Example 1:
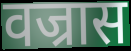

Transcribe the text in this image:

वज्रास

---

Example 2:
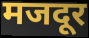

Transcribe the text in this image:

मजदूर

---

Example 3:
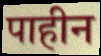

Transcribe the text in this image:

पाहीन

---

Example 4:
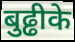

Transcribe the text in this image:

बुढ्ढीके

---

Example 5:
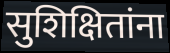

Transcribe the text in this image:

सुशिक्षितांना